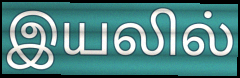
இயலில்